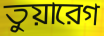
তুয়ারেগ